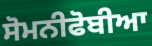
ਸੋਮਨੀਫੋਬੀਆ